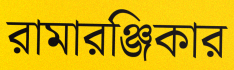
রামারঞ্জিকার